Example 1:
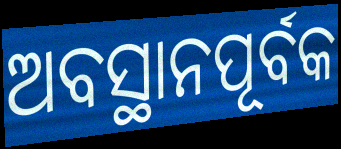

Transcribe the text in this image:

ଅବସ୍ଥାନପୂର୍ବକ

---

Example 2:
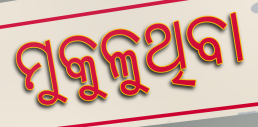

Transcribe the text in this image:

ମୁକୁଳୁଥିବା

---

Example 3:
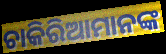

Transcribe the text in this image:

ଚାକିରିଆମାନଙ୍କ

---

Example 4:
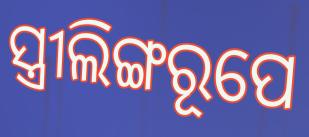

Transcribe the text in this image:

ସ୍ତ୍ରୀଲିଙ୍ଗରୂପେ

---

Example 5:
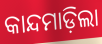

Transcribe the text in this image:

କାନ୍ଦମାଡ଼ିଲା